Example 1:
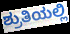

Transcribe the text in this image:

ಶ್ರುತಿಯಲ್ಲಿ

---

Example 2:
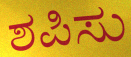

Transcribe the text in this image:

ಶಪಿಸು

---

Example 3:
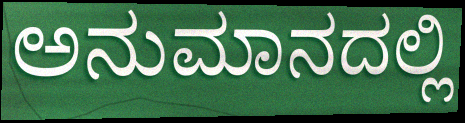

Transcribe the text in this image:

ಅನುಮಾನದಲ್ಲಿ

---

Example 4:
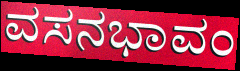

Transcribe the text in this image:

ವಸನಭಾವಂ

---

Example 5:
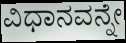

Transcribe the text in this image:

ವಿಧಾನವನ್ನೇ